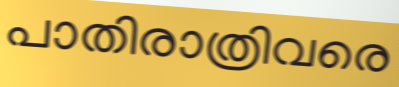
പാതിരാത്രിവരെ